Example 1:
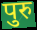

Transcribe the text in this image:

पुरु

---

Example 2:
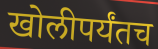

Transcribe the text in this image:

खोलीपर्यंतच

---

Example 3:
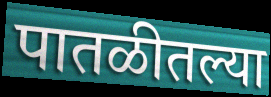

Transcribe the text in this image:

पातळीतल्या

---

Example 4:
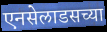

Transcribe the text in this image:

एनसेलाडसच्या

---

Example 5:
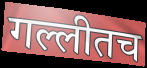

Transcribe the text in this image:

गल्लीतच